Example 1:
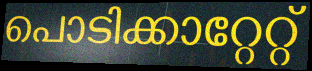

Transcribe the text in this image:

പൊടിക്കാറ്റേറ്റ്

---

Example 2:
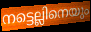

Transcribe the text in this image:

നട്ടെല്ലിനെയും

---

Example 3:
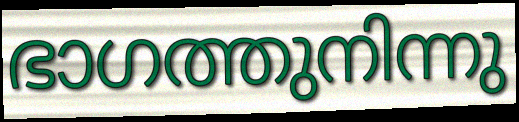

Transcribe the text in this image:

ഭാഗത്തുനിന്നു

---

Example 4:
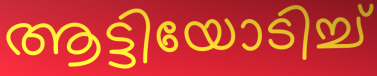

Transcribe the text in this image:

ആട്ടിയോടിച്ച്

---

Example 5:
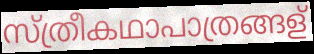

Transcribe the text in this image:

സ്ത്രീകഥാപാത്രങ്ങള്